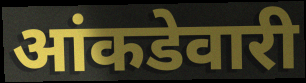
आंकडेवारी